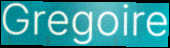
Gregoire